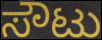
ಸೌಟು